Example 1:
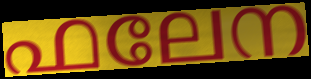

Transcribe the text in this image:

ഫലേന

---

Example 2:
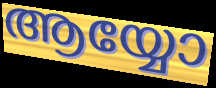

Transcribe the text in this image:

ആയ്യോ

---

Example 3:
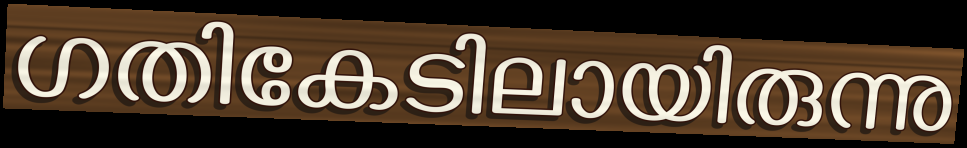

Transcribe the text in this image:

ഗതികേടിലായിരുന്നു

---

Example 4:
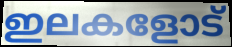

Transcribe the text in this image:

ഇലകളോട്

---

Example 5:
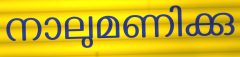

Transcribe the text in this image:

നാലുമണിക്കു